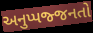
અનુપ્પજ્જનતો